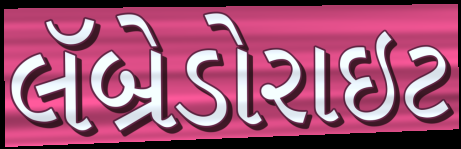
લૅબ્રેડોરાઇટ